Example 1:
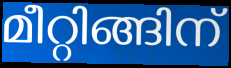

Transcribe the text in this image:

മീറ്റിങ്ങിന്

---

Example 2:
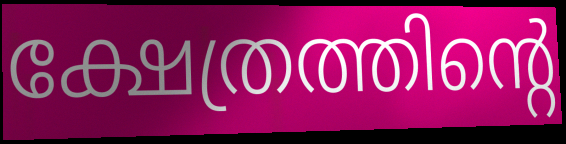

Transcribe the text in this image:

ക്ഷേത്രത്തിന്റെ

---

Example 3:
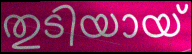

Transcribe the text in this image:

തുടിയായ്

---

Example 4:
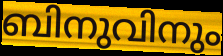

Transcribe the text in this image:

ബിനുവിനും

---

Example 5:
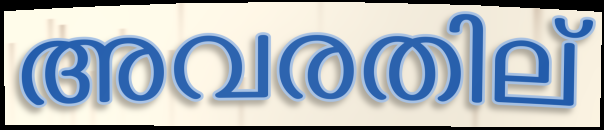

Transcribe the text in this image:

അവരതില്